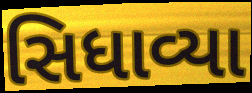
સિધાવ્યા